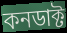
কনডাক্ট